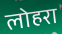
लोहरा